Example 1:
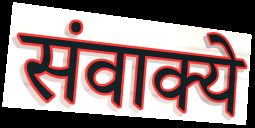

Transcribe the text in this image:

संवाक्ये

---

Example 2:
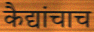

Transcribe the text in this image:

कैद्यांचाच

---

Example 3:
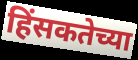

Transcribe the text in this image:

हिंसकतेच्या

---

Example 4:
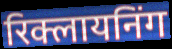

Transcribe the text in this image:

रिक्लायनिंग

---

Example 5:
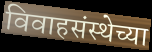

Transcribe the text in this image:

विवाहसंस्थेच्या